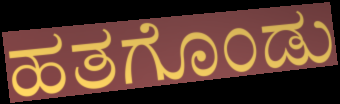
ಹತಗೊಂಡು